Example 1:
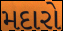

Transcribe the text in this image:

મદારો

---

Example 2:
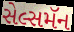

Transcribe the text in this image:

સેલ્સમૅન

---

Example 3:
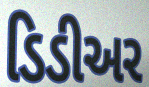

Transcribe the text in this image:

ડિડીઅર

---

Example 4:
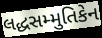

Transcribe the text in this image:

લદ્ધસમ્મુતિકેન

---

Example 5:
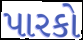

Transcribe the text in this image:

પારકો